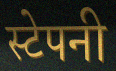
स्टेपनी